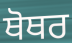
ਥੋਥਰ